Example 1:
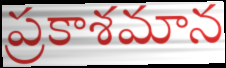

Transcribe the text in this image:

ప్రకాశమాన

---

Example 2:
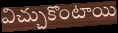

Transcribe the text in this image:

విచ్చుకొంటాయి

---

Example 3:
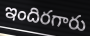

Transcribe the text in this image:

ఇందిరగారు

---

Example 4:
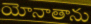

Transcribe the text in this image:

యోనాతాను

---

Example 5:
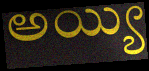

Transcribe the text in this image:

అయ్యి